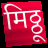
मिठ्ठू